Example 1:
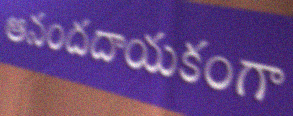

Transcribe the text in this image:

ఆనందదాయకంగా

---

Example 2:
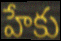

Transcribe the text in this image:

హేకు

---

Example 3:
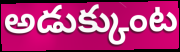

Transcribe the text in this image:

అడుక్కుంట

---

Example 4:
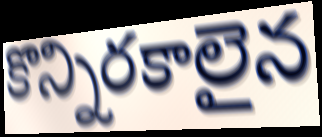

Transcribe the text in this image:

కొన్నిరకాలైన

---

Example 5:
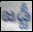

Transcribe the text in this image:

జడ్జీ